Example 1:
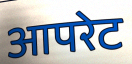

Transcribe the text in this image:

आपरेट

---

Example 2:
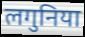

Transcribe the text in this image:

लगुनिया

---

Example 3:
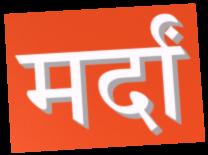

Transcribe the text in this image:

मर्दां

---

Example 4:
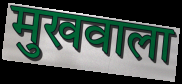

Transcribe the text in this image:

मुखवाला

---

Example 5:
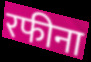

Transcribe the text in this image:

रफीना